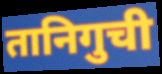
तानिगुची